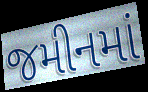
જમીનમાં